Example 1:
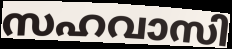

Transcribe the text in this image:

സഹവാസി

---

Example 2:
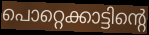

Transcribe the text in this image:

പൊറ്റെക്കാട്ടിന്റെ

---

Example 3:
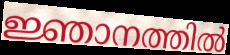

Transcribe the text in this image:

ജ്ഞാനത്തിൽ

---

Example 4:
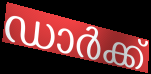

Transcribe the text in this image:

ഡാർക്ക്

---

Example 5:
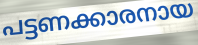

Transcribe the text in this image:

പട്ടണക്കാരനായ